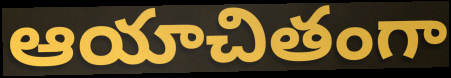
ఆయాచితంగా